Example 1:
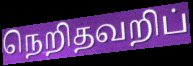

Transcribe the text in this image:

நெறிதவறிப்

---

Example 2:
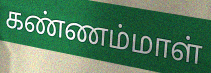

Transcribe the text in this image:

கண்ணம்மாள்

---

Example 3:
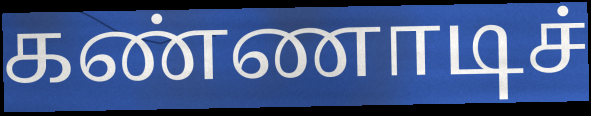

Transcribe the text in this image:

கண்ணாடிச்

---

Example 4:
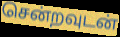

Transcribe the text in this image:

சென்றவுடன்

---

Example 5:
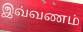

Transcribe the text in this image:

இவ்வணம்